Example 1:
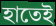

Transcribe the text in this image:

হাতেই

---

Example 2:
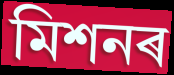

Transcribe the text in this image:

মিশনৰ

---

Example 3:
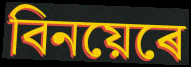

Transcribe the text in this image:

বিনয়েৰে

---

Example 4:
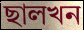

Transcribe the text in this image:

ছালখন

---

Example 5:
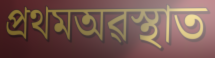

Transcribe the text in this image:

প্ৰথমঅৱস্থাত